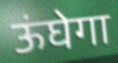
ऊंघेगा